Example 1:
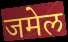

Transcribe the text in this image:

जमेल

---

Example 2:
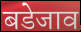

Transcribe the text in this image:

बडेजाव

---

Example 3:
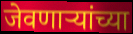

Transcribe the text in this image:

जेवणाऱ्यांच्या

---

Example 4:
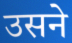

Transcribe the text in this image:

उसने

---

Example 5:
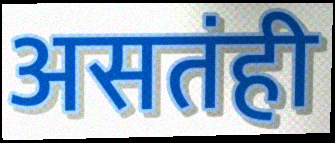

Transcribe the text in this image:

असतंही